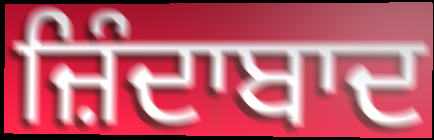
ਜ਼ਿੰਦਾਬਾਦ